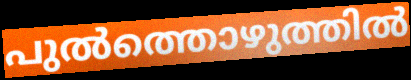
പുൽത്തൊഴുത്തിൽ